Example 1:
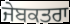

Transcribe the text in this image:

ਜੇਬਕਤਰਾ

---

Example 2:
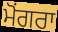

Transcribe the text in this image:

ਮੋਂਗਰਾ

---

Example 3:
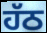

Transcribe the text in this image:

ਹੱਠ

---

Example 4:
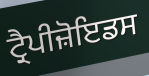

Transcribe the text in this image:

ਟ੍ਰੈਪੀਜ਼ੋਇਡਸ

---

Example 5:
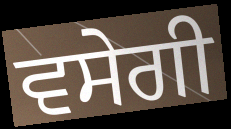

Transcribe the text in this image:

ਵਸੇਗੀ